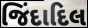
જિંદાદિલ